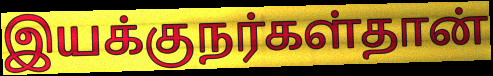
இயக்குநர்கள்தான்